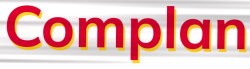
Complan